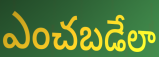
ఎంచబడేలా